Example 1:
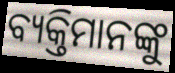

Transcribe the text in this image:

ବ୍ଯକ୍ତିମାନଙ୍କୁ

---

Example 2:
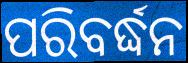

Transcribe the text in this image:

ପରିବର୍ଦ୍ଧନ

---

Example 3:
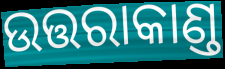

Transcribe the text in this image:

ଉତ୍ତରାକାଣ୍ଡ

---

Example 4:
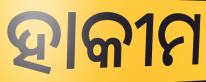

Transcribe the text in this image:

ହାକୀମ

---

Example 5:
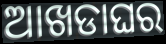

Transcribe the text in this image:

ଆଖଡାଘର